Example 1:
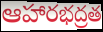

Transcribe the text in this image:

ఆహారభద్రత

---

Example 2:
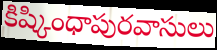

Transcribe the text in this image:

కిష్కింధాపురవాసులు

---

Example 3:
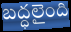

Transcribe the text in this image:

బద్ధలైంది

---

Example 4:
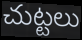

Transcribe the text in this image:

చుట్టలు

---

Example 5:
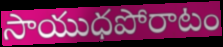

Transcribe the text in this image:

సాయుధపోరాటం